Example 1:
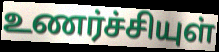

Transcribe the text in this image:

உணர்ச்சியுள்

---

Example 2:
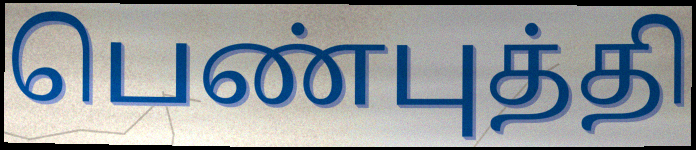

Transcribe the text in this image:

பெண்புத்தி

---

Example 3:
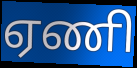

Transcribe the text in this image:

ஏணி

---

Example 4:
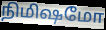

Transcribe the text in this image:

நிமிஷமோ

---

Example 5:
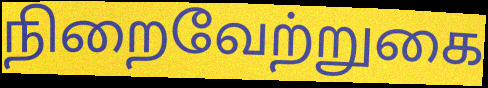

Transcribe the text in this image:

நிறைவேற்றுகை